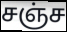
சஞ்ச